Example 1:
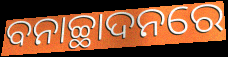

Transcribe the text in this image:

ବନାଚ୍ଛାଦନରେ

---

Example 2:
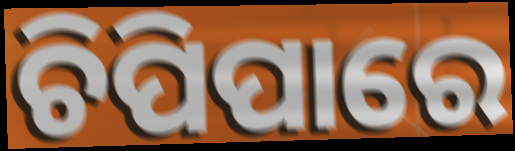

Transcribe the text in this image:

ଚିପିପାରେ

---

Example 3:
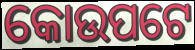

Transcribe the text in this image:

କୋଉପଟେ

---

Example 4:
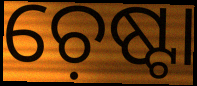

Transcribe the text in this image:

ଚ଼େଷ୍ଟା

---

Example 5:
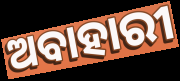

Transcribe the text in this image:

ଅବାହାରୀ